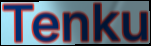
Tenku